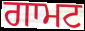
ਗਾਮਟ